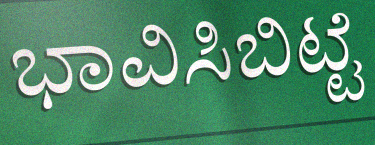
ಭಾವಿಸಿಬಿಟ್ಟೆ